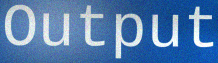
Output